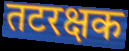
तटरक्षक